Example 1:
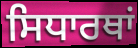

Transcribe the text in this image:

ਸਿਧਾਰਥਾਂ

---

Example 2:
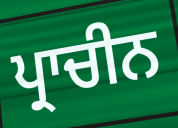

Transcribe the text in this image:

ਪ੍ਰਾਚੀਨ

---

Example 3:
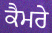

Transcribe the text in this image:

ਕੈਮਰੇ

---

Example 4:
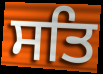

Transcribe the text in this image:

ਸਤਿ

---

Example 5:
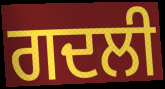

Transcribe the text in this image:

ਗਦਲੀ